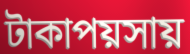
টাকাপয়সায়